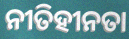
ନୀତିହୀନତା